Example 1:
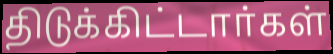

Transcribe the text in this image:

திடுக்கிட்டார்கள்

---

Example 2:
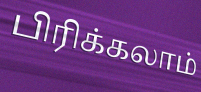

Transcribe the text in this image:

பிரிக்கலாம்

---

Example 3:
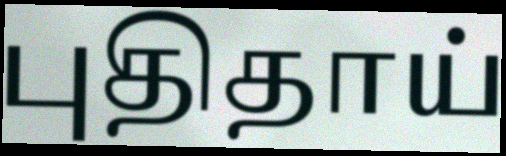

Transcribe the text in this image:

புதிதாய்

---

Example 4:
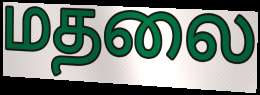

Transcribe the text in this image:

மதலை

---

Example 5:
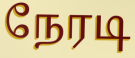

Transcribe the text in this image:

நேரடி